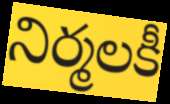
నిర్మలకీ